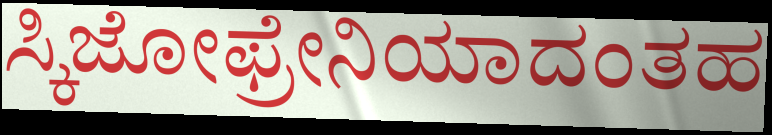
ಸ್ಕಿಜೋಫ್ರೇನಿಯಾದಂತಹ